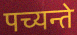
पच्यन्ते